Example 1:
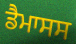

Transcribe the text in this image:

ਡੈਮਾਸਸ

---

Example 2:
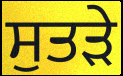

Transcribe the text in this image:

ਸੁਤੜੇ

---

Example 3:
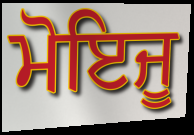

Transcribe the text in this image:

ਮੋਇਜੂ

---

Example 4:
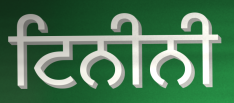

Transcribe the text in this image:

ਟਿਨੀਨੀ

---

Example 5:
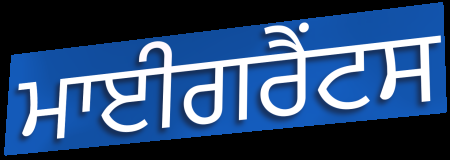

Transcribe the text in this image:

ਮਾਈਗਰੈਂਟਸ